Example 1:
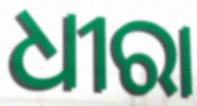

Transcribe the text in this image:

ଧୀରା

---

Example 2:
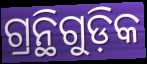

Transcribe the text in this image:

ଗ୍ରନ୍ଥିଗୁଡ଼ିକ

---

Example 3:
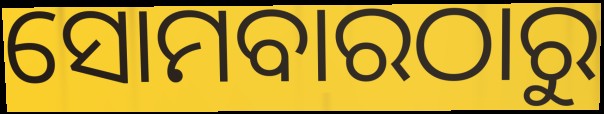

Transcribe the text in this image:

ସୋମବାରଠାରୁ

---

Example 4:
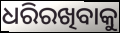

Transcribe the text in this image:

ଧରିରଖିବାକୁ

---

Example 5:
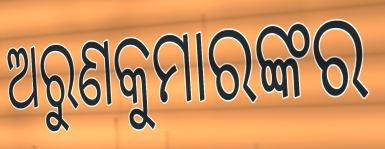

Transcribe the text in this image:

ଅରୁଣକୁମାରଙ୍କର